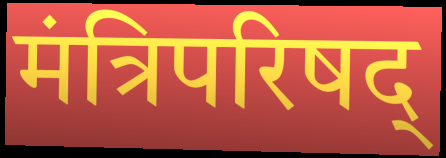
मंत्रिपरिषद्